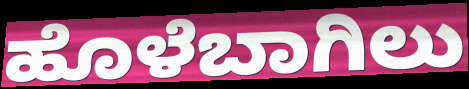
ಹೊಳೆಬಾಗಿಲು